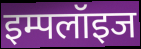
इम्पलॉइज